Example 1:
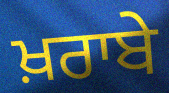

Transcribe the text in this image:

ਖ਼ਰਾਬੇ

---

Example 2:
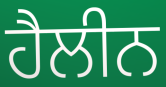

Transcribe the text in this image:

ਹੈਲੀਨ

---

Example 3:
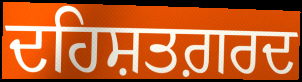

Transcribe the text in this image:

ਦਹਿਸ਼ਤਗ਼ਰਦ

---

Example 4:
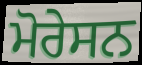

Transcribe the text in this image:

ਮੋਰੇਸਨ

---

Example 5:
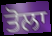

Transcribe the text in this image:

ਤੋਲਾ